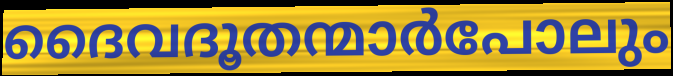
ദൈവദൂതന്മാർപോലും